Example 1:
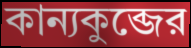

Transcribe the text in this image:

কান্যকুব্জের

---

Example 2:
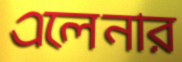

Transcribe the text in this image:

এলেনার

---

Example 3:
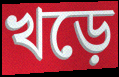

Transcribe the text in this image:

খড়ে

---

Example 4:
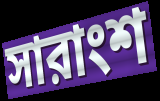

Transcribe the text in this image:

সারাংশ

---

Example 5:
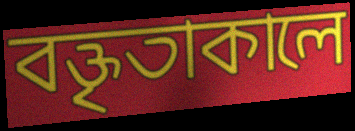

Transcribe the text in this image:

বক্তৃতাকালে